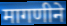
मागणीने